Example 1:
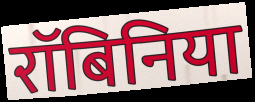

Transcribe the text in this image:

रॉबिनिया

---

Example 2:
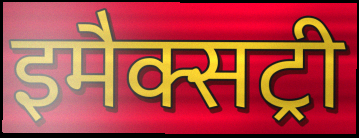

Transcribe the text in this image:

इमैक्सट्री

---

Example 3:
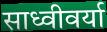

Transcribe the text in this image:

साध्वीवर्या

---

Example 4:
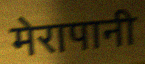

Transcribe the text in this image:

मेरापानी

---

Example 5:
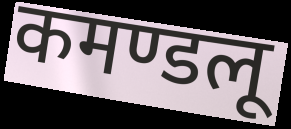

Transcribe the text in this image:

कमण्डलू